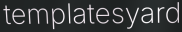
templatesyard